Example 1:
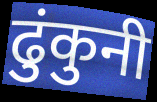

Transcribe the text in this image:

ढुंकुनी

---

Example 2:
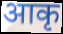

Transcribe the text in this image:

आकृ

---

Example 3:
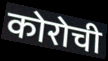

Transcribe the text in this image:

कोरोची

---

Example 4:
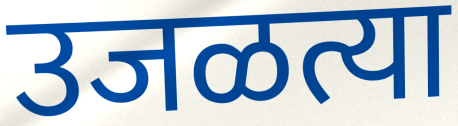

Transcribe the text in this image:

उजळत्या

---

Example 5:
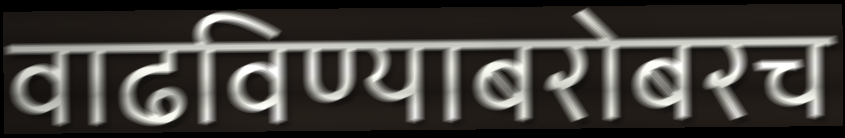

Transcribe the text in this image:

वाढविण्याबरोबरच